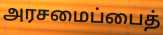
அரசமைப்பைத்